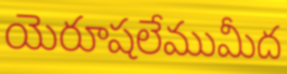
యెరూషలేముమీద